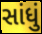
સાંધું